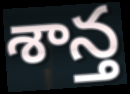
శాన్త